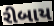
રીબાય